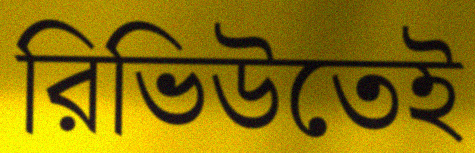
রিভিউতেই